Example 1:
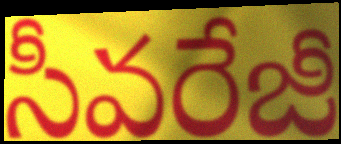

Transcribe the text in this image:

సీవరేజీ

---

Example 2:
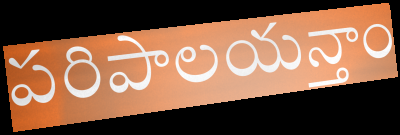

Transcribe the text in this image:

పరిపాలయన్తాం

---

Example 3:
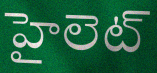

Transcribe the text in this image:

హైలెట్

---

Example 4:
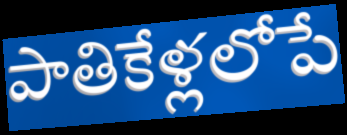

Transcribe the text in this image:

పాతికేళ్లలోపే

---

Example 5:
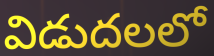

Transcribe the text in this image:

విడుదలలో